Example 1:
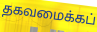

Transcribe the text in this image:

தகவமைக்கப்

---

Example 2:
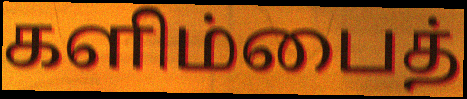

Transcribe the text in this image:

களிம்பைத்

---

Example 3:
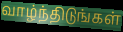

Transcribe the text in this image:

வாழ்ந்திடுங்கள்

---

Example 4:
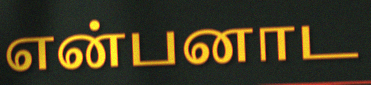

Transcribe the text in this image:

என்பனாட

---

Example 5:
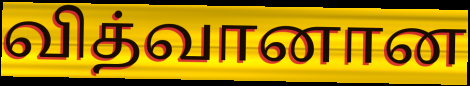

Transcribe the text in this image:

வித்வானான